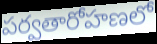
పర్వతారోహణలో